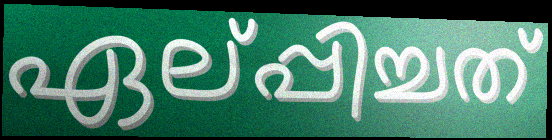
ഏല്പ്പിച്ചത്